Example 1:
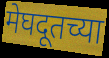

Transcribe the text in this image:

मेघदूतच्या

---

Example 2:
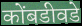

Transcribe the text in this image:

कोंबडीवडे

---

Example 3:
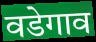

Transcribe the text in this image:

वडेगाव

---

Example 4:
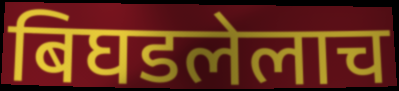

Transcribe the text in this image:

बिघडलेलाच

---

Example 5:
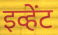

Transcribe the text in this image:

इव्हेंट